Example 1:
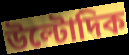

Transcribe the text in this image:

উল্টোদিক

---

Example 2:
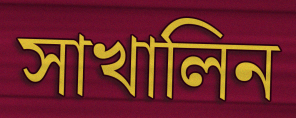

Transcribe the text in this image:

সাখালিন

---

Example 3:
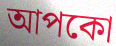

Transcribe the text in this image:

আপকো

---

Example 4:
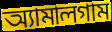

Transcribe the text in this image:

অ্যামালগাম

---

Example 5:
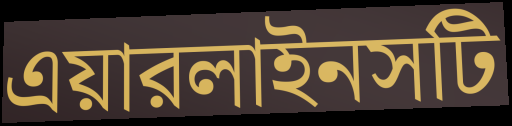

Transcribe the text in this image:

এয়ারলাইনসটি